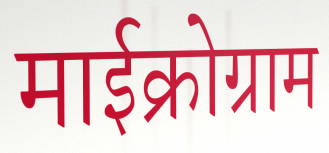
माईक्रोग्राम